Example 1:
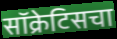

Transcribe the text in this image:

सॉक्रेटिसचा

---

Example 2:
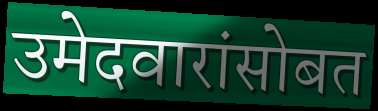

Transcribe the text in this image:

उमेदवारांसोबत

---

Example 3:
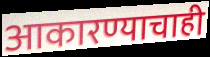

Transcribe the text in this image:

आकारण्याचाही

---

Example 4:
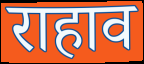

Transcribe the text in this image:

राहाव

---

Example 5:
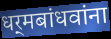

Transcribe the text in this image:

धर्मबांधवांना